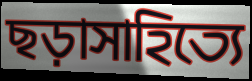
ছড়াসাহিত্যে